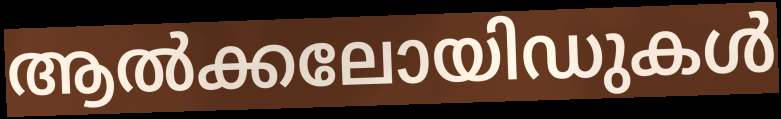
ആൽക്കലോയിഡുകൾ